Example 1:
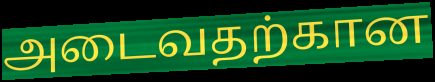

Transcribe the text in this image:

அடைவதற்கான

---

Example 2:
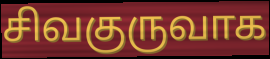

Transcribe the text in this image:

சிவகுருவாக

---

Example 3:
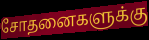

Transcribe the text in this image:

சோதனைகளுக்கு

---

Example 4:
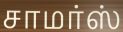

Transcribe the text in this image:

சாமர்ஸ்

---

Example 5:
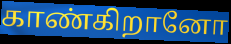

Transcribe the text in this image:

காண்கிறானோ